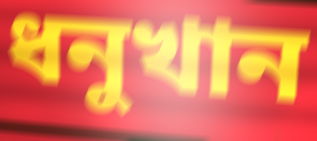
ধনুখান